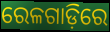
ରେଳଗାଡ଼ିରେ